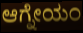
ಆಗ್ನೇಯಂ